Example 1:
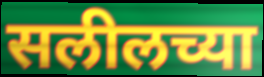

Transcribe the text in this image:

सलीलच्या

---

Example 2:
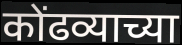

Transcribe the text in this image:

कोंढव्याच्या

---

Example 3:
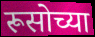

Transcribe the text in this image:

रूसोच्या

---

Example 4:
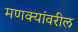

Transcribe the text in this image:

मणक्यांवरील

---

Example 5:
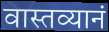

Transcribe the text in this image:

वास्तव्यानं